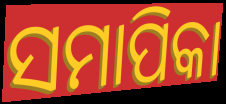
ସମାପିକା